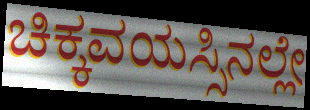
ಚಿಕ್ಕವಯಸ್ಸಿನಲ್ಲೇ